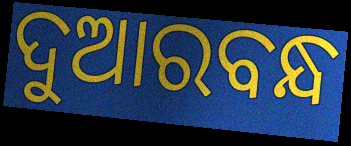
ଦୁଆରବନ୍ଧ